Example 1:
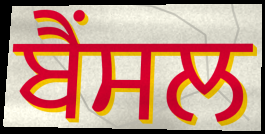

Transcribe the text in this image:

ਬੈਂਸਲ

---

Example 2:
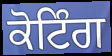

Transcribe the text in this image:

ਕੋਟਿੰਗ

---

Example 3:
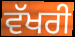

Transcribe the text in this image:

ਵੱਖਰੀ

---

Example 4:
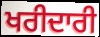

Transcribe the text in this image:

ਖਰੀਦਾਰੀ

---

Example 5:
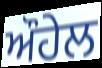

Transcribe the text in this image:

ਔਹੇਲ